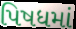
પિષધમાં